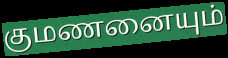
குமணனையும்